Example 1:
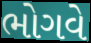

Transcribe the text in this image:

ભોગવે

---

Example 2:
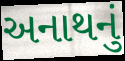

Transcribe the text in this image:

અનાથનું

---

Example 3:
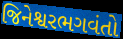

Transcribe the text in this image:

જિનેશ્વરભગવંતો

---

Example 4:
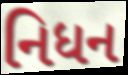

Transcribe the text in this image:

નિધન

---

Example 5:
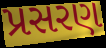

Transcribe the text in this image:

પ્રસરણ